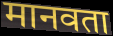
मानवता